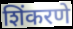
शिंकरणे